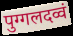
पुग्गलदव्वं